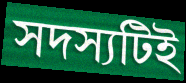
সদস্যটিই